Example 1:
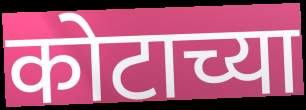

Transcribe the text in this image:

कोटाच्या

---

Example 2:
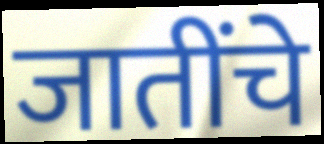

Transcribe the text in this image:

जातींचे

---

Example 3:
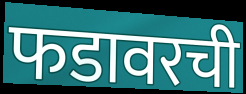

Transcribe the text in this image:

फडावरची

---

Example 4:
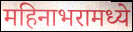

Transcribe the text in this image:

महिनाभरामध्ये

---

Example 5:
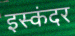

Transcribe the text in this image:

इस्कंदर